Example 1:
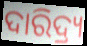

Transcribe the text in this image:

ଦାରିଦ୍ର୍ୟ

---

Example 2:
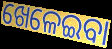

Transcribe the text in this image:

ଖେଳେଇବା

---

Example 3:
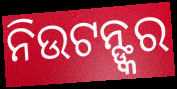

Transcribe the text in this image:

ନିଉଟନ୍ଙ୍କର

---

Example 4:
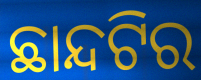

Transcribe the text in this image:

ଛାନ୍ଦଟିର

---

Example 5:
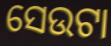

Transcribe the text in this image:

ସେଉଟା